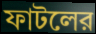
ফাটলের